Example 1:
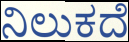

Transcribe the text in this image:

ನಿಲುಕದೆ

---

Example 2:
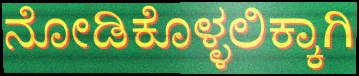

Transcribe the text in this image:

ನೋಡಿಕೊಳ್ಳಲಿಕ್ಕಾಗಿ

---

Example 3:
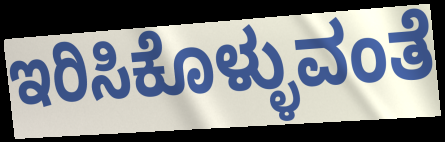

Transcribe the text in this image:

ಇರಿಸಿಕೊಳ್ಳುವಂತೆ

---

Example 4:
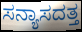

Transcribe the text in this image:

ಸನ್ಯಾಸದತ್ತ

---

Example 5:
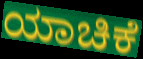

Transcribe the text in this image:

ಯಾಚಿಕೆ